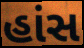
હાંસ